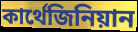
কার্থেজিনিয়ান